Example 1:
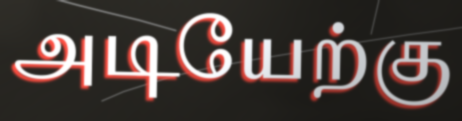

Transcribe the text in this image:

அடியேற்கு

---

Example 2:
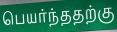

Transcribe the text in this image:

பெயர்ந்ததற்கு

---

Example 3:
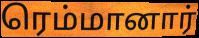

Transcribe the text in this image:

ரெம்மானார்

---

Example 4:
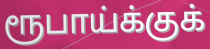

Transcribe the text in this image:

ரூபாய்க்குக்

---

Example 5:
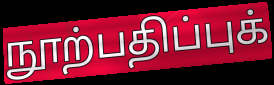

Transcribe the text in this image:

நூற்பதிப்புக்